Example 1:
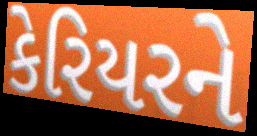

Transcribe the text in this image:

કેરિયરને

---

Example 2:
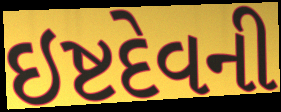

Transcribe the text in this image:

ઇષ્ટદેવની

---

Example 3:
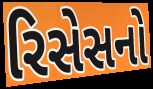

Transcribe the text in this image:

રિસેસનો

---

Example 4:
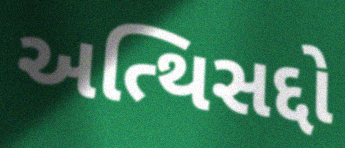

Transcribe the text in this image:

અત્થિસદ્દો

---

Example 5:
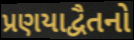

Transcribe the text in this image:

પ્રણયાદ્વૈતનો